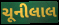
ચૂનીલાલ